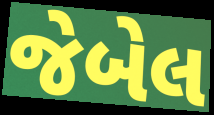
જેબેલ